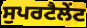
ਸੁਪਰਟੈਲੇਂਟ